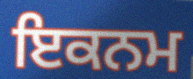
ਇਕਨਮ